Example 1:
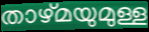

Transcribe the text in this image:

താഴ്മയുമുള്ള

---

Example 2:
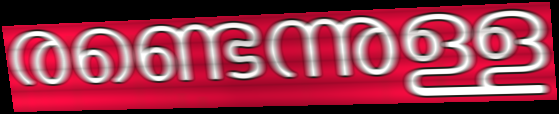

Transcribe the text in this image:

രണ്ടെന്നുള്ള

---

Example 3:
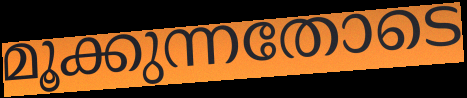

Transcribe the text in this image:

മൂക്കുന്നതോടെ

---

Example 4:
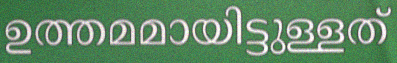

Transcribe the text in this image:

ഉത്തമമായിട്ടുള്ളത്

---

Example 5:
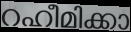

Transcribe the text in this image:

റഹീമിക്കാ